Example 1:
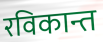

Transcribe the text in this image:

रविकान्त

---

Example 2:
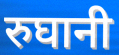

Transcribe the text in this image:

रुघानी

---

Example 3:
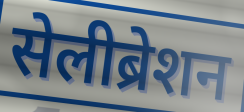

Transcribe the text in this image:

सेलीब्रेशन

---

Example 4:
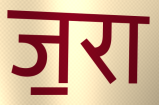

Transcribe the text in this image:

ज॒रा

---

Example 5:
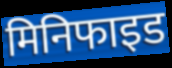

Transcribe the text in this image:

मिनिफाइड